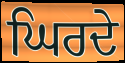
ਘਿਰਦੇ